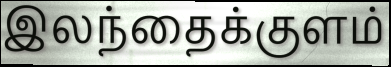
இலந்தைக்குளம்